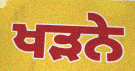
ਖੜਨੇ